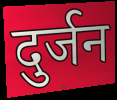
दुर्जन